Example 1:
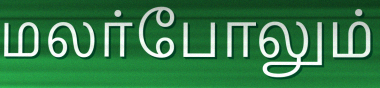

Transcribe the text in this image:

மலர்போலும்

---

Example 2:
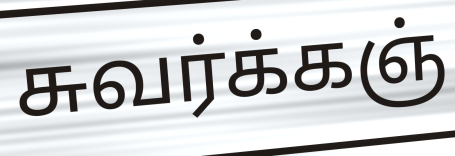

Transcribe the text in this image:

சுவர்க்கஞ்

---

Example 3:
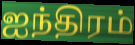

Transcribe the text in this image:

ஐந்திரம்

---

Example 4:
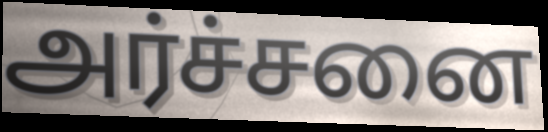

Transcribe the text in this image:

அர்ச்சனை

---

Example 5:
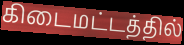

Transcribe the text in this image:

கிடைமட்டத்தில்